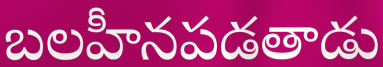
బలహీనపడతాడు